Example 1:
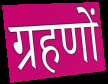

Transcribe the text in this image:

ग्रहणों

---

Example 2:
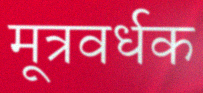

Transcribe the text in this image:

मूत्रवर्धक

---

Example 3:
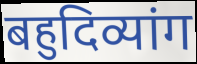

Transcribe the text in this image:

बहुदिव्यांग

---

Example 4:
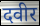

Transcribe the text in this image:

दवीर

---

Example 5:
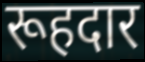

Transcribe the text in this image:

रूहदार